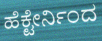
ಹೆಕ್ಟೇರ್ನಿಂದ